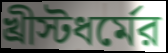
খ্রীস্টধর্মের